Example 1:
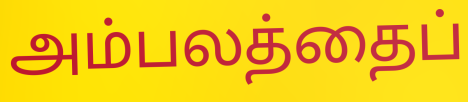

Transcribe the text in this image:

அம்பலத்தைப்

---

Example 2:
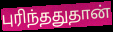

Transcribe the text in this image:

புரிந்ததுதான்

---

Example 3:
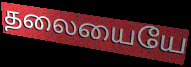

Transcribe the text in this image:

தலையையே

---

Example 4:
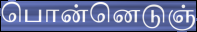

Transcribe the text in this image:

பொன்னெடுஞ்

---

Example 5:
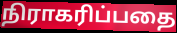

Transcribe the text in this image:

நிராகரிப்பதை